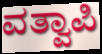
ವತ್ವಾಪಿ